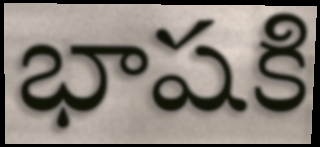
భాషకి